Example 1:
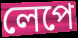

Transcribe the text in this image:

লেপে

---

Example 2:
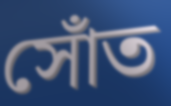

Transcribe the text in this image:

সোঁত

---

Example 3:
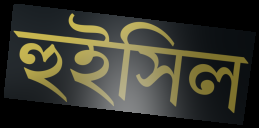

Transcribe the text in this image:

হুইসিল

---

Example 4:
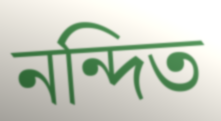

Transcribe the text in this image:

নন্দিত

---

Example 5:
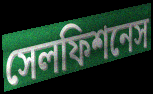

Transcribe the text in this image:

সেলফিশনেস